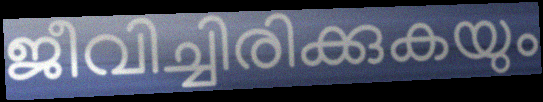
ജീവിച്ചിരിക്കുകയും